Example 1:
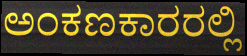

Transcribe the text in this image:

ಅಂಕಣಕಾರರಲ್ಲಿ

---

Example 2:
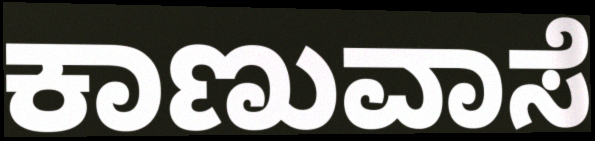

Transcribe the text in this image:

ಕಾಣುವಾಸೆ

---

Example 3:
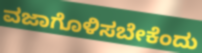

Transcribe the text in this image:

ವಜಾಗೊಳಿಸಬೇಕೆಂದು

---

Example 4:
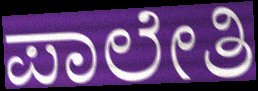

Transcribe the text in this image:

ಪಾಲೇತಿ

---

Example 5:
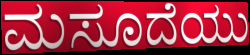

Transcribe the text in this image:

ಮಸೂದೆಯು